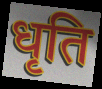
धृति